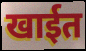
खाईत